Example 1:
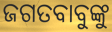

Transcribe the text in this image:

ଜଗତବାବୁଙ୍କୁ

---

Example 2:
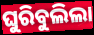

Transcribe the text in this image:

ଘୁରିବୁଲିଲା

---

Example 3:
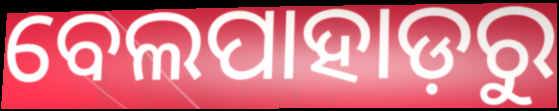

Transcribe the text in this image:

ବେଲପାହାଡ଼ରୁ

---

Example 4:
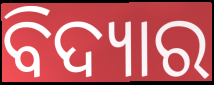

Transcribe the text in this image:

ବିଦ୍ୟାର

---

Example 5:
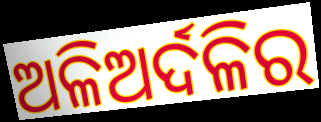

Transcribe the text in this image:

ଅଳିଅର୍ଦଳିର